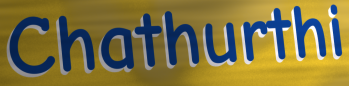
Chathurthi